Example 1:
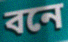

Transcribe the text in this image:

বনে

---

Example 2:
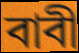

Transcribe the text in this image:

বাবী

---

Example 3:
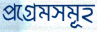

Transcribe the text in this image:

প্ৰগ্ৰেমসমূহ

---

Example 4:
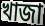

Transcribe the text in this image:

খাজা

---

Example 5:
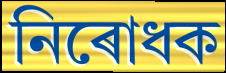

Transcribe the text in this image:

নিৰোধক